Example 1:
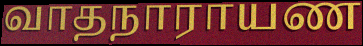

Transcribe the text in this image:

வாதநாராயண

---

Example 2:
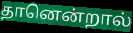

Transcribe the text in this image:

தானென்றால்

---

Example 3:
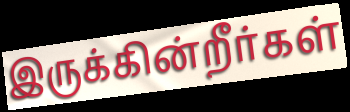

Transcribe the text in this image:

இருக்கின்றீர்கள்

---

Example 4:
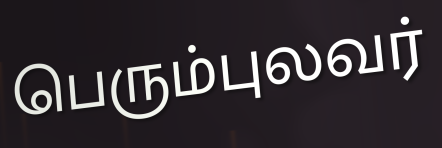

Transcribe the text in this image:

பெரும்புலவர்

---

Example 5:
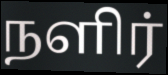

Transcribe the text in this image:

நளிர்